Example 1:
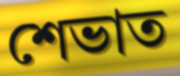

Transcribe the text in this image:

শেভাত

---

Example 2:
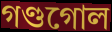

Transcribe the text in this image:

গণ্ডগোল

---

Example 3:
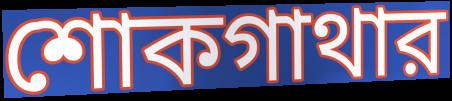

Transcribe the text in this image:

শোকগাথার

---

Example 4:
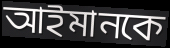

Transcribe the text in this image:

আইমানকে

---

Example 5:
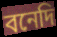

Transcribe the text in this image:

বনেদি